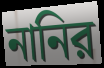
নানির